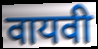
वायवी